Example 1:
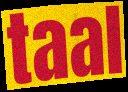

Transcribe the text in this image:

taal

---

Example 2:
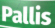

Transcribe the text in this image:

Pallis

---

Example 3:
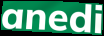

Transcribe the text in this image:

anedi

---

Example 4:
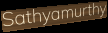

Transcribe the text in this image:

Sathyamurthy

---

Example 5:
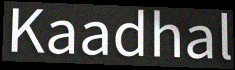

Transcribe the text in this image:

Kaadhal